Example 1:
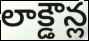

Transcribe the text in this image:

లాక్డౌన్ల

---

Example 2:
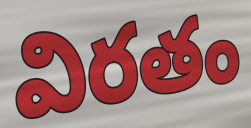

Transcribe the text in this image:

విరతం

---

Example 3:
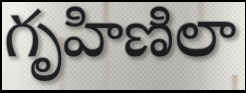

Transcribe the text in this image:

గృహిణిలా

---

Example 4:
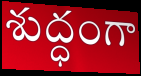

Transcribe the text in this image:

శుద్ధంగా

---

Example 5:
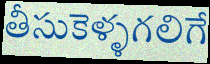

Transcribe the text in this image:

తీసుకెళ్ళగలిగే